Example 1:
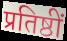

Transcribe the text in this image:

प्रतिष्ठीं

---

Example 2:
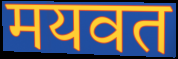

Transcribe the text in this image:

मयवत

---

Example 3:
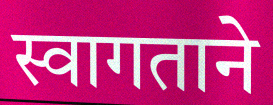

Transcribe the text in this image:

स्वागताने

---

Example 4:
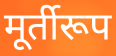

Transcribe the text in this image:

मूर्तीरूप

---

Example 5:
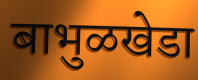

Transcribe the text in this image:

बाभुळखेडा